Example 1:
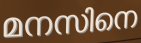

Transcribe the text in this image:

മനസിനെ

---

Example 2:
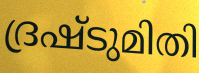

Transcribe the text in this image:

ദ്രഷ്ടുമിതി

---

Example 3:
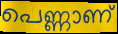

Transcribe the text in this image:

പെണ്ണാണ്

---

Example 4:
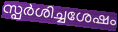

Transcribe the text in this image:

സ്പർശിച്ചശേഷം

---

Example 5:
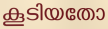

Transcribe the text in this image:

കൂടിയതോ